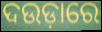
ଦଉଡ଼ାରେ